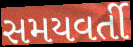
સમયવર્તી